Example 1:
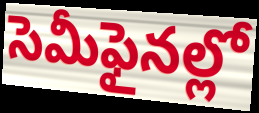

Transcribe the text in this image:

సెమీఫైనల్లో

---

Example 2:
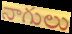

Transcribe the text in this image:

నాగులు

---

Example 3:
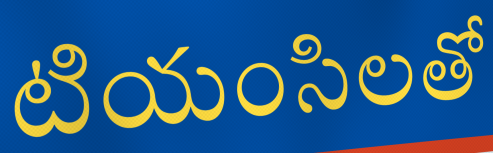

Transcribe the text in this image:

టియంసిలతో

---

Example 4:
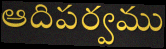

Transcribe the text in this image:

ఆదిపర్వము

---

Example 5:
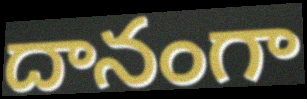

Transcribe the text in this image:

దానంగా